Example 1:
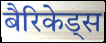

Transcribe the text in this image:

बैरिकेड्स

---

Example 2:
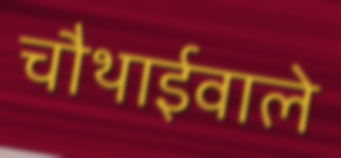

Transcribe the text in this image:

चौथाईवाले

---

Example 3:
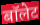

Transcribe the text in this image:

बॉलेट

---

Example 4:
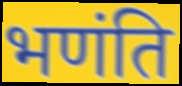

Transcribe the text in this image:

भणंति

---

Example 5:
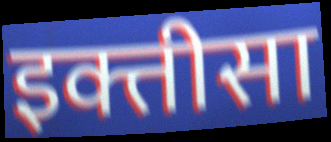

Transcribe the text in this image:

इक्तीसा